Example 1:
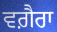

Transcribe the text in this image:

ਵਗ਼ੈਰਾ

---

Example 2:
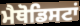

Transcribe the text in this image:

ਮੈਥੋਡਿਸਟਾਂ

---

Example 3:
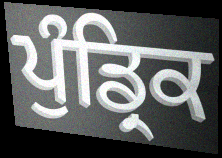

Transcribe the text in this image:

ਪੁੰਡ੍ਰਿਕ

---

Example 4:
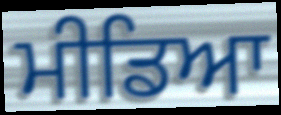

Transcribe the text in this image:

ਮੀਡਿਆ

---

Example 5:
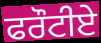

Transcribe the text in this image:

ਫਰੌਟੀਏ